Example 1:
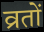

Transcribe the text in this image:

व्रतों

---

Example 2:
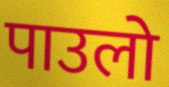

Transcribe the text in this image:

पाउलो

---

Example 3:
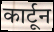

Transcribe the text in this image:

कार्टून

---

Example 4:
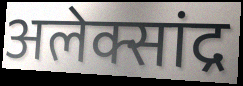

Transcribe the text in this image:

अलेक्सांद्र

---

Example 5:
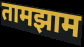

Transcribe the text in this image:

तामझाम